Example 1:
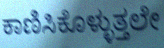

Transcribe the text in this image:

ಕಾಣಿಸಿಕೊಳ್ಳುತ್ತಲೇ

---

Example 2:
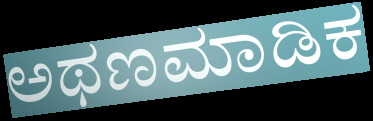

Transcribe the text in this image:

ಅಥಣಮಾಡಿಕ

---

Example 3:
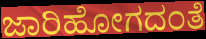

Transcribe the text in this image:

ಜಾರಿಹೋಗದಂತೆ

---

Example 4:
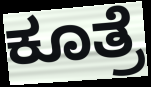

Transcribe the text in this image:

ಕೂತ್ರೆ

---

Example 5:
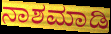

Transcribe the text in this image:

ನಾಶಮಾಡಿ